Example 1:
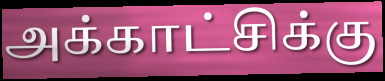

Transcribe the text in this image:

அக்காட்சிக்கு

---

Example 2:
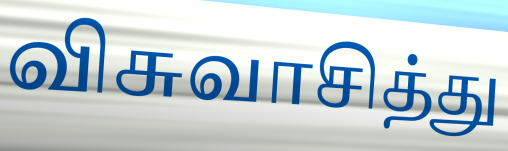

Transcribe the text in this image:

விசுவாசித்து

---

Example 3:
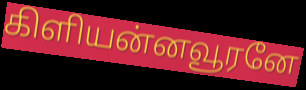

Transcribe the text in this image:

கிளியன்னவூரனே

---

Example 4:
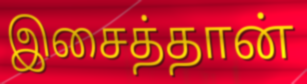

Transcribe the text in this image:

இசைத்தான்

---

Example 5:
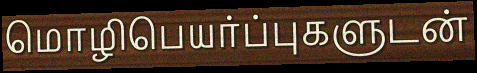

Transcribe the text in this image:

மொழிபெயர்ப்புகளுடன்